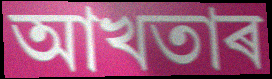
আখতাৰ